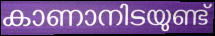
കാണാനിടയുണ്ട്